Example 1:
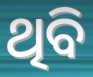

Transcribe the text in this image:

ଥିବି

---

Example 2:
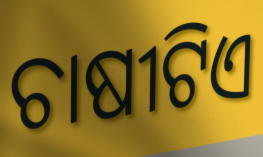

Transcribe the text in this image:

ଚାଷୀଟିଏ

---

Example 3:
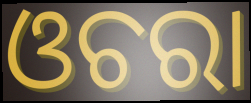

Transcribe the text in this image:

ଓଚରା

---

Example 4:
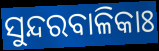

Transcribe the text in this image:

ସୁନ୍ଦରବାଳିକାଃ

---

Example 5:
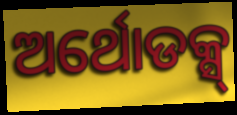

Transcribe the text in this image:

ଅର୍ଥୋଡକ୍ସ୍